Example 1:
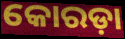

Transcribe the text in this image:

କୋରଡ଼ା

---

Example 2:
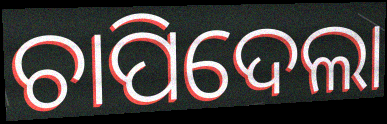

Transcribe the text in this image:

ଚାପିଦେଲା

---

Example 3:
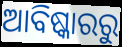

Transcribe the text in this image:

ଆବିଷ୍କାରରୁ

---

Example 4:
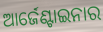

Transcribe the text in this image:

ଆର୍ଜେଣ୍ଟାଇନାର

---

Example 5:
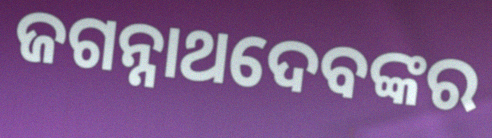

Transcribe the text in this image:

ଜଗନ୍ନାଥଦେବଙ୍କର